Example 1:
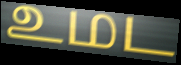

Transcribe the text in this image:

உமட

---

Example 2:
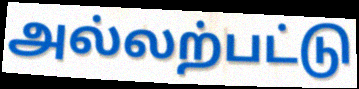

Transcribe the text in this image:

அல்லற்பட்டு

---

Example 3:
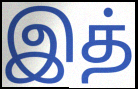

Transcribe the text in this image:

இத்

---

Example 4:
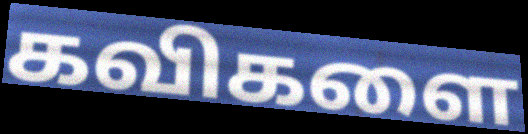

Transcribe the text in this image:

கவிகளை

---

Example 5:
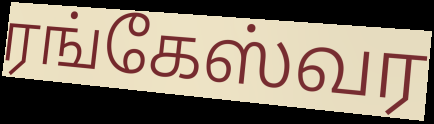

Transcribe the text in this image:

ரங்கேஸ்வர